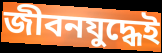
জীবনযুদ্ধেই